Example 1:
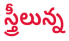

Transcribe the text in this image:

స్త్రీలున్న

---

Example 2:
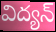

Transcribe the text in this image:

విద్యన్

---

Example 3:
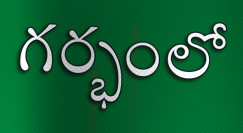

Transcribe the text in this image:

గర్భంలో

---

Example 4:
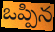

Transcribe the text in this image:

ఒప్పిన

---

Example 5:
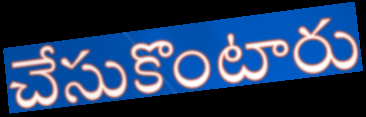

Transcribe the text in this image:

చేసుకొంటారు